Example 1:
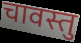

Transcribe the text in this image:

चावस्तु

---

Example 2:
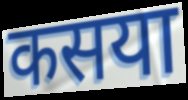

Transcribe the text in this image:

कसया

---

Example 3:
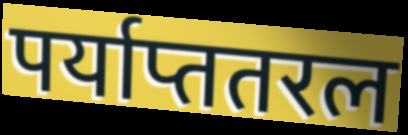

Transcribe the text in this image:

पर्याप्ततरल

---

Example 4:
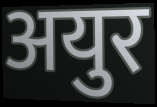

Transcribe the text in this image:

अयुर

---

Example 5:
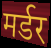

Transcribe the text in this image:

मर्डर